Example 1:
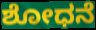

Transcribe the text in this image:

ಶೋಧನೆ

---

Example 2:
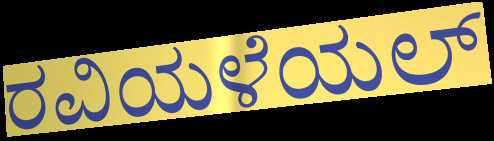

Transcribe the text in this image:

ರವಿಯಳೆಯಲ್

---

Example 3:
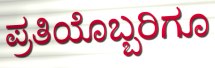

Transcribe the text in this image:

ಪ್ರತಿಯೊಬ್ಬರಿಗೂ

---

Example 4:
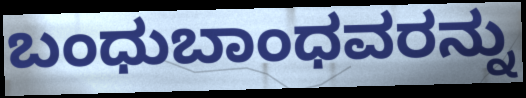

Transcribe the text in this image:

ಬಂಧುಬಾಂಧವರನ್ನು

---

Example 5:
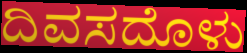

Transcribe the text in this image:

ದಿವಸದೊಳು